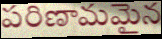
పరిణామమైన